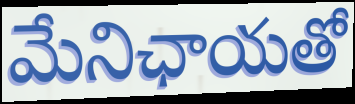
మేనిఛాయతో